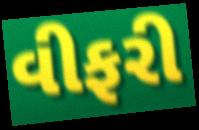
વીફરી